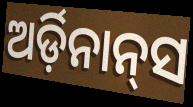
ଅର୍ଡ଼ିନାନ୍‌ସ